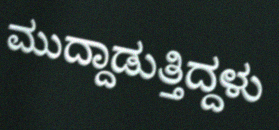
ಮುದ್ದಾಡುತ್ತಿದ್ದಳು